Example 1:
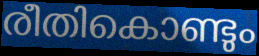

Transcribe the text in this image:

രീതികൊണ്ടും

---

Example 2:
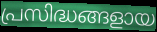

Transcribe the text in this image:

പ്രസിദ്ധങ്ങളായ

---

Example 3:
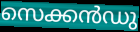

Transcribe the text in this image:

സെക്കൻഡു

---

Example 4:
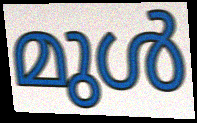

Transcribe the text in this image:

മുൾ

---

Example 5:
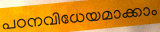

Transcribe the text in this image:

പഠനവിധേയമാക്കാം